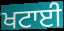
ਖਟਾਈ